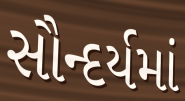
સૌન્દર્યમાં